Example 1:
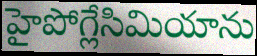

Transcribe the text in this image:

హైపోగ్లేసిమియాను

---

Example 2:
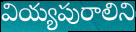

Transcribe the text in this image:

వియ్యపురాలిని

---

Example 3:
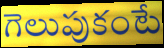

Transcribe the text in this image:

గెలుపుకంటే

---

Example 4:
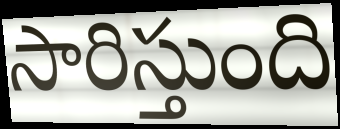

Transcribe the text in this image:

సారిస్తుంది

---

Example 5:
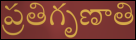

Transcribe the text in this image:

ప్రతిగృణాతి